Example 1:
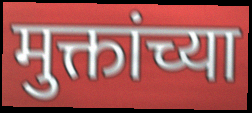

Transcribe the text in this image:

मुक्तांच्या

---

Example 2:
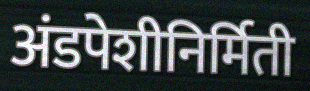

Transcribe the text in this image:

अंडपेशीनिर्मिती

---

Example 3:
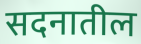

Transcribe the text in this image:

सदनातील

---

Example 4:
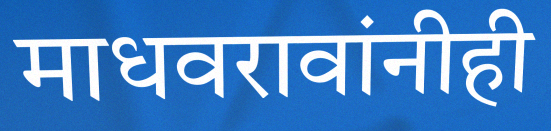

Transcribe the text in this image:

माधवरावांनीही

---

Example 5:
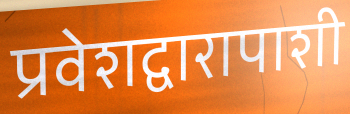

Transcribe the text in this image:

प्रवेशद्वारापाशी